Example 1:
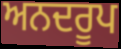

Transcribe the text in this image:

ਅਨਦਰੂਪ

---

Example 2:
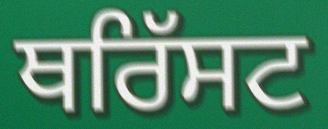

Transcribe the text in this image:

ਥਰਿੱਸਟ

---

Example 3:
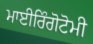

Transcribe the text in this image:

ਮਾਈਰਿੰਗੋਟੋਮੀ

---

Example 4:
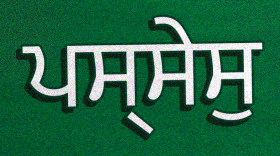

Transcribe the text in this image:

ਪਸ੍ਸੇਸੁ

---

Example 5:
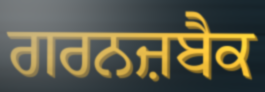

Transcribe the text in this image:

ਗਰਨਜ਼ਬੈਕ